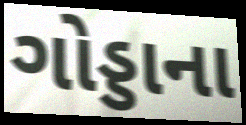
ગોડ્ડાના